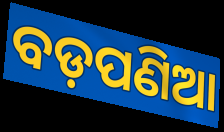
ବଡ଼ପଣିଆ